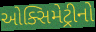
ઓક્સિમેટ્રીનો